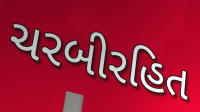
ચરબીરહિત